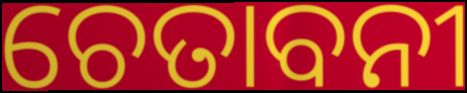
ଚେତାବନୀ